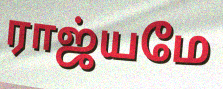
ராஜ்யமே